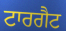
ਟਾਰਗੈਟ